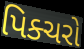
પિક્ચરો